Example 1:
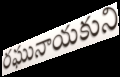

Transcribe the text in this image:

రఘునాయకుని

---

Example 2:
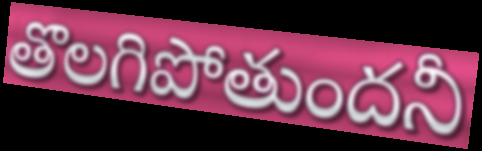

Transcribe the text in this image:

తొలగిపోతుందనీ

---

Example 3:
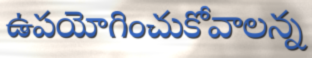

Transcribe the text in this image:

ఉపయోగించుకోవాలన్న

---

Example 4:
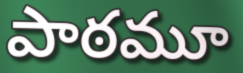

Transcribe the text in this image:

పాఠమూ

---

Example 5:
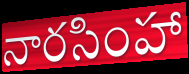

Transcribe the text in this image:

నారసింహా